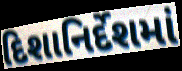
દિશાનિર્દેશમાં